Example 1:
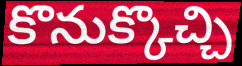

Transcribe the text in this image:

కొనుక్కొచ్చి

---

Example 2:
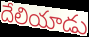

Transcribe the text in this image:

దేలియాడు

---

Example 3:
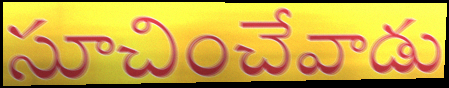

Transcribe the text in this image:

సూచించేవాడు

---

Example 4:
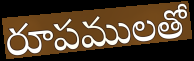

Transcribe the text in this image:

రూపములతో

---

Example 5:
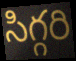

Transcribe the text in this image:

సిగ్గరి